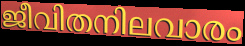
ജീവിതനിലവാരം